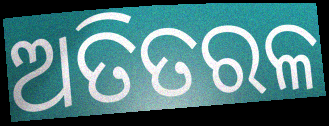
ଅତିତରଳ